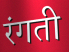
रंगती